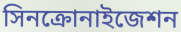
সিনক্রোনাইজেশন